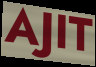
AJIT